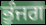
ਭੁੰਜਗ